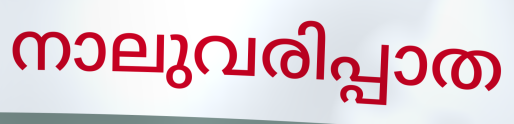
നാലുവരിപ്പാത